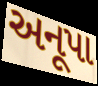
અનૂપા